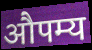
औपम्य